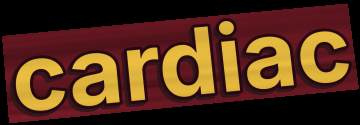
cardiac